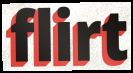
flirt